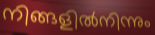
നിങ്ങളിൽനിന്നും